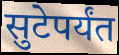
सुटेपर्यंत